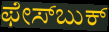
ಫೇಸ್‌ಬುಕ್